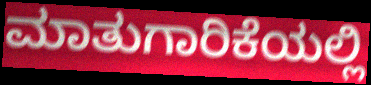
ಮಾತುಗಾರಿಕೆಯಲ್ಲಿ